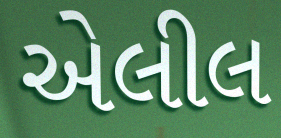
એલીલ